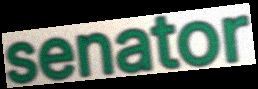
senator